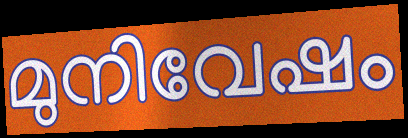
മുനിവേഷം